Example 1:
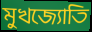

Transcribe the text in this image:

মুখজ্যোতি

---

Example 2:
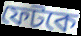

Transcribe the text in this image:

ফেটকে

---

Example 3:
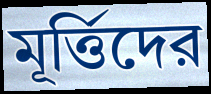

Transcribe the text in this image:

মূর্ত্তিদের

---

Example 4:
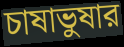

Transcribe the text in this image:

চাষাভুষার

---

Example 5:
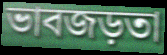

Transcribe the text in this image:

ভাবজড়তা